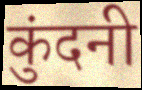
कुंदनी